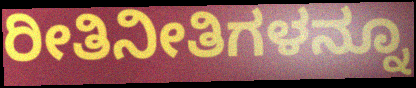
ರೀತಿನೀತಿಗಳನ್ನೂ